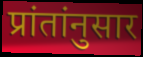
प्रांतांनुसार